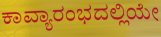
ಕಾವ್ಯಾರಂಭದಲ್ಲಿಯೇ